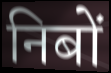
निबों